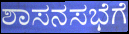
ಶಾಸನಸಭೆಗೆ